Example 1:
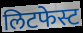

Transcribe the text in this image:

लिटफेस्ट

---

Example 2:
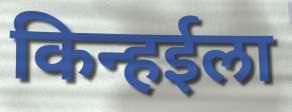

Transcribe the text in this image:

किन्हईला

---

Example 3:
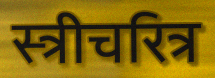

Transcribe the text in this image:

स्त्रीचरित्र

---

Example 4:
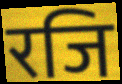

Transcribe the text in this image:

रजि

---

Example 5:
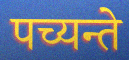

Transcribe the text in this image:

पच्यन्ते